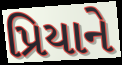
પ્રિયાને